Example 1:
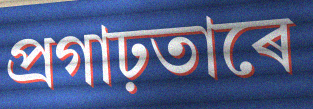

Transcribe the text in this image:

প্ৰগাঢ়তাৰে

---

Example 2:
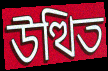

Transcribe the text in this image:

উত্থিত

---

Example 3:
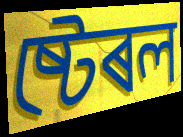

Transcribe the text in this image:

ষ্টেৰল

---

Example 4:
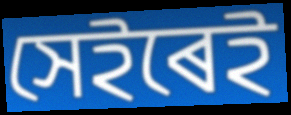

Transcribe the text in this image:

সেইৰেই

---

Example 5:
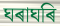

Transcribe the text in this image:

ঘৰাঘৰি